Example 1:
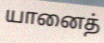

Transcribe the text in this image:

யானைத்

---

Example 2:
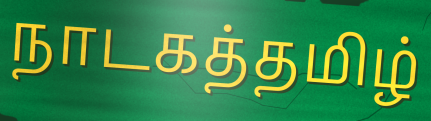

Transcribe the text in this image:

நாடகத்தமிழ்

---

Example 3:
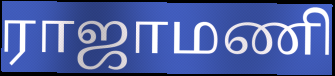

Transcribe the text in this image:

ராஜாமணி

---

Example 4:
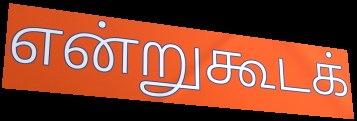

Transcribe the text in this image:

என்றுகூடக்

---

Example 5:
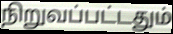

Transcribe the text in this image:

நிறுவப்பட்டதும்